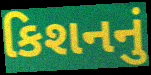
કિશનનું